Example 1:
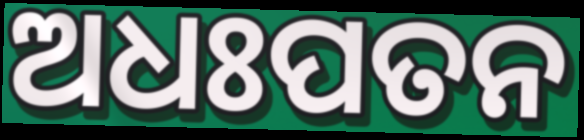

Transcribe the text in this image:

ଅଧଃପତନ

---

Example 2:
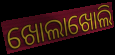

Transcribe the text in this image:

ଖୋଲାଖୋଲି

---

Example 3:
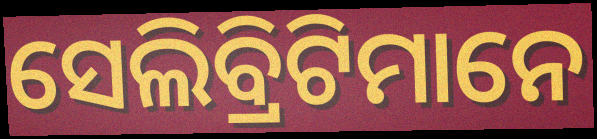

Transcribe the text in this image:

ସେଲିବ୍ରିଟିମାନେ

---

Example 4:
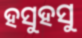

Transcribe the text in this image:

ହସୁହସୁ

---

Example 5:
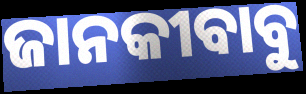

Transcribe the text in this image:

ଜାନକୀବାବୁ